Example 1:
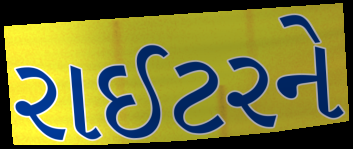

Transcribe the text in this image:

રાઈટરને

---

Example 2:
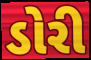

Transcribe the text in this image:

ડોરી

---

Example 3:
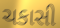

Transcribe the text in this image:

ચકાસી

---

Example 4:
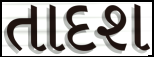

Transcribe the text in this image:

તાદશ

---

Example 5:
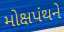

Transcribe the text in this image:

મોક્ષપંથને